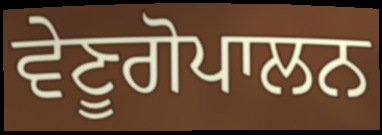
ਵੇਣੂਗੋਪਾਲਨ